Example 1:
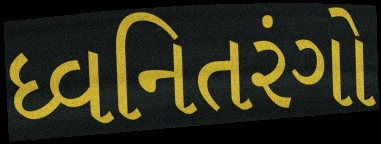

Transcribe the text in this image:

ધ્વનિતરંગો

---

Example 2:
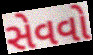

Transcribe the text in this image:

સેવવો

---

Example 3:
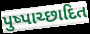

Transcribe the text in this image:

પુષ્પાચ્છાદિત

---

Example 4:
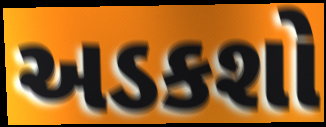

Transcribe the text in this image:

અડકશો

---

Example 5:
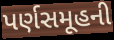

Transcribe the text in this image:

પર્ણસમૂહની